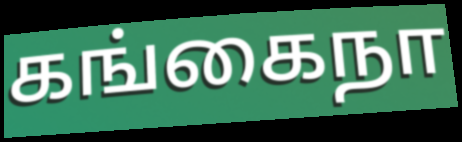
கங்கைநா